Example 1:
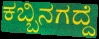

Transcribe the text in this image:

ಕಬ್ಬಿನಗದ್ದೆ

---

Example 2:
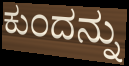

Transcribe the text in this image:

ಕುಂದನ್ನು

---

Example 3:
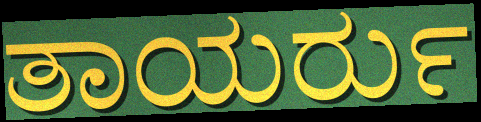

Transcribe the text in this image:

ತಾಯರ್ರು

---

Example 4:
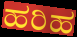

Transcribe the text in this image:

ಹರಿಹ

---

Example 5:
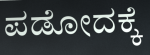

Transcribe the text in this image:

ಪಡೋದಕ್ಕೆ